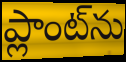
ప్లాంట్‌ను